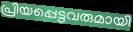
പ്രിയപ്പെട്ടവരുമായി